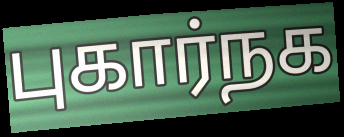
புகார்நக